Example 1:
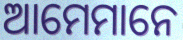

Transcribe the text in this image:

ଆମେମାନେ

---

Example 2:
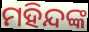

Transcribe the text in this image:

ମହିନ୍ଦଙ୍କ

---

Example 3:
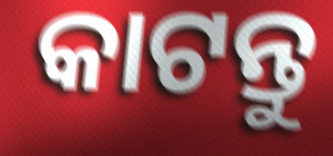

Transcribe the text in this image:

କାଟନ୍ତୁ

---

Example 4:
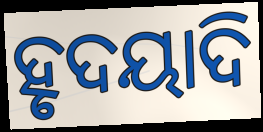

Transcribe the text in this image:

ହୃଦୟାଦି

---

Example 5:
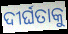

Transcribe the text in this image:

ଦୀର୍ଘତାକୁ